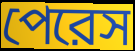
পেরেস